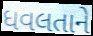
ધવલતાને